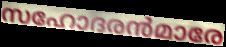
സഹോദരൻമാരേ